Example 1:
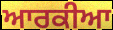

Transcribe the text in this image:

ਆਰਕੀਆ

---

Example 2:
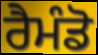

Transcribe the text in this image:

ਰੈਮੰਡੋ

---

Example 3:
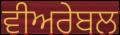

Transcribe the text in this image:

ਵੀਅਰੇਬਲ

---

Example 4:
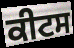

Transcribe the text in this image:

ਕੀਟਸ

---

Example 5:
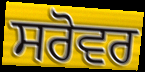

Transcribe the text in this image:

ਸਰੋਵਰ